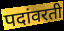
पदांवरती